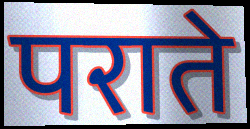
पराते